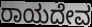
ರಾಯದೇವ